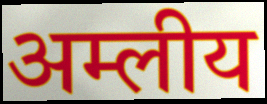
अम्‍लीय